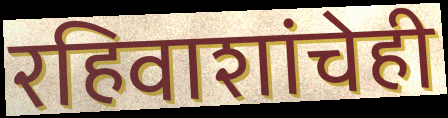
रहिवाशांचेही